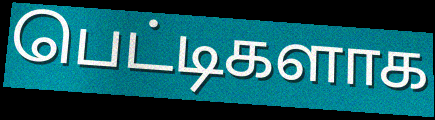
பெட்டிகளாக